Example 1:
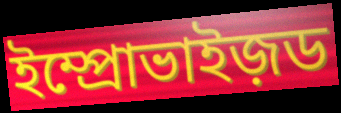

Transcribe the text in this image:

ইম্প্রোভাইজ়ড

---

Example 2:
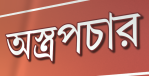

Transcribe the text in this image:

অস্ত্রপচার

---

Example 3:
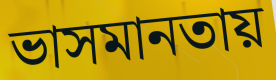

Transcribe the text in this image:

ভাসমানতায়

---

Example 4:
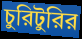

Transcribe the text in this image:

চুরিটুরির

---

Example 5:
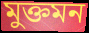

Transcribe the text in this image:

মুক্তমন